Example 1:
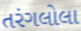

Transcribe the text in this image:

તરંગલોલા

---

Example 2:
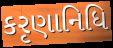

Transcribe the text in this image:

કરૃણાનિધિ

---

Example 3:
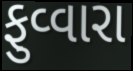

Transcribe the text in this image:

ફુવ્વારા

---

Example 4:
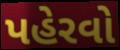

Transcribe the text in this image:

પહેરવો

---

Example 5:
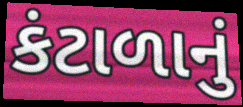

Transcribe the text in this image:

કંટાળાનું